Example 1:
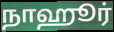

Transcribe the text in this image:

நாஹூர்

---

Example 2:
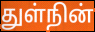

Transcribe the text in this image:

துள்நின்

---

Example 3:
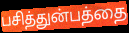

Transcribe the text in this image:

பசித்துன்பத்தை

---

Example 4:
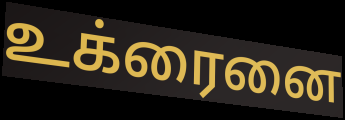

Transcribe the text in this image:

உக்ரைனை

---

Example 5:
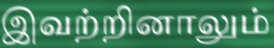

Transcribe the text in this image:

இவற்றினாலும்